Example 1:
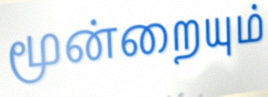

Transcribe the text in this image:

மூன்றையும்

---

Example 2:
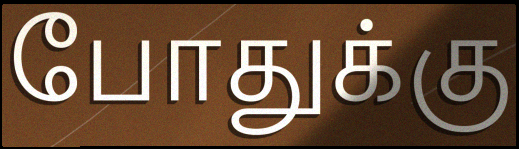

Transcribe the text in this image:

போதுக்கு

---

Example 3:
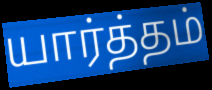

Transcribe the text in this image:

யார்த்தம்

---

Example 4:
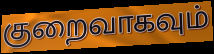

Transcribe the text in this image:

குறைவாகவும்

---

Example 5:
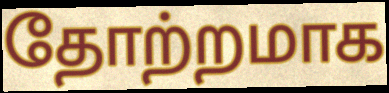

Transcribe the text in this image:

தோற்றமாக